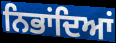
ਨਿਭਾਂਦਿਆਂ